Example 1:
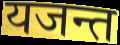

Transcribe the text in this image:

यजन्त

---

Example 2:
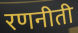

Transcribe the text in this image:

रणनीती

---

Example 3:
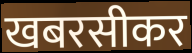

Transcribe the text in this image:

खबरसीकर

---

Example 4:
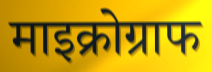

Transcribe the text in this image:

माइक्रोग्राफ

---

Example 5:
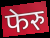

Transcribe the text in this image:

फेरु